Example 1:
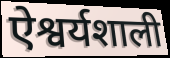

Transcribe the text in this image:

ऐश्वर्यशाली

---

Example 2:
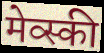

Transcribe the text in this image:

मेव्स्की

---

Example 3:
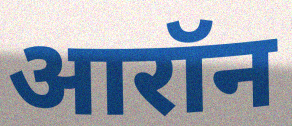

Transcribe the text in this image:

आरॉन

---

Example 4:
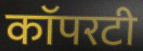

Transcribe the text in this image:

कॉपरटी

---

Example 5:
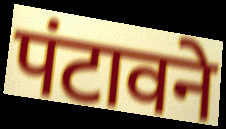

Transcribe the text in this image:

पंटावने